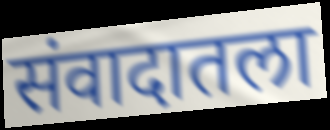
संवादातला